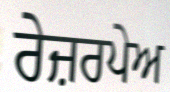
ਰੇਜ਼ਰਪੇਅ